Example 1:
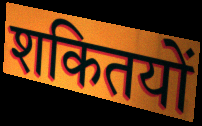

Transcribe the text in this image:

शकितयों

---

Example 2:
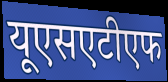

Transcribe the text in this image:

यूएसएटीएफ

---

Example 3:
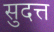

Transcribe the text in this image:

सुदत्त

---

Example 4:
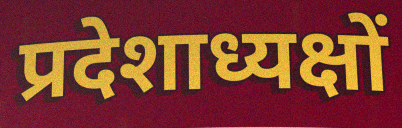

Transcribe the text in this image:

प्रदेशाध्यक्षों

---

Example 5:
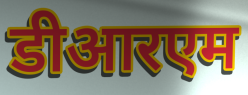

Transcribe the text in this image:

डीआरएम